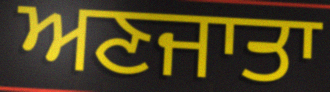
ਅਣਜਾਤਾ